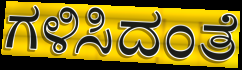
ಗಳಿಸಿದಂತೆ